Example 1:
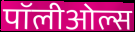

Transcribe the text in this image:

पॉलीओल्स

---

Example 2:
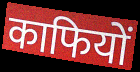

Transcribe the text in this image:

काफियों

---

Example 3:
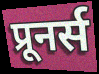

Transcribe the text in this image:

प्रूनर्स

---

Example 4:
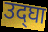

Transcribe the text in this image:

उद्घा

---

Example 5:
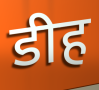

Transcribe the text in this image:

डीह